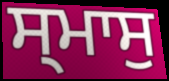
ਸ੍ਮਾਸੁ